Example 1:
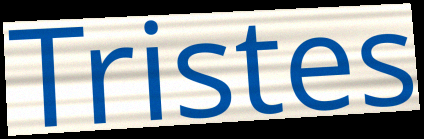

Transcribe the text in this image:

Tristes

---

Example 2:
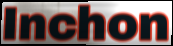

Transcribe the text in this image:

Inchon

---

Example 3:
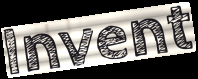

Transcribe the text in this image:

Invent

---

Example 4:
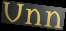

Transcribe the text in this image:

Unn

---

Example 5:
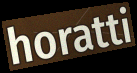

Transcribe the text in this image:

horatti